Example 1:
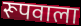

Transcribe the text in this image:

रूपवाला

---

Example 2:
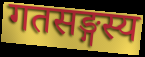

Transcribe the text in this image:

गतसङ्गस्य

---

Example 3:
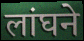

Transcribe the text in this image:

लांघने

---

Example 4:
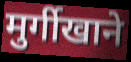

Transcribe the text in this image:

मुर्गीखाने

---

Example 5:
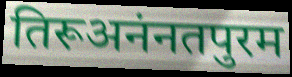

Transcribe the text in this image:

तिरूअनंनतपुरम